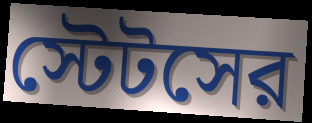
স্টেটসের